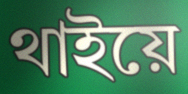
থাইয়ে